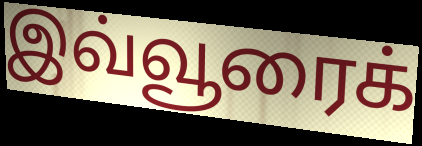
இவ்வூரைக்